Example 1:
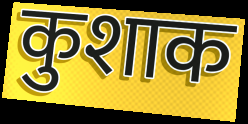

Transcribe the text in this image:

कुशाक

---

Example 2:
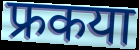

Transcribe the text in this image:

फ्रकया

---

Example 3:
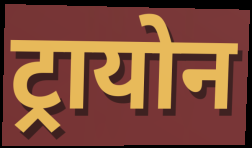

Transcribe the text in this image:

ट्रायोन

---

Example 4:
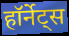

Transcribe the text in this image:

हॉर्नेट्स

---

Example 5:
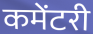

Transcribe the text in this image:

कमेंटरी